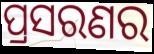
ପ୍ରସରଣର